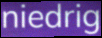
niedrig